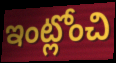
ఇంట్లోంచి